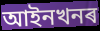
আইনখনৰ